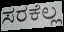
ಸರಕೆಲ್ಲ